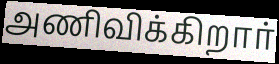
அணிவிக்கிறார்